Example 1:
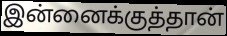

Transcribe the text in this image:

இன்னைக்குத்தான்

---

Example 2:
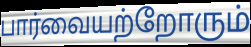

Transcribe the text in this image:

பார்வையற்றோரும்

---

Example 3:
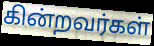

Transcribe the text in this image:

கின்றவர்கள்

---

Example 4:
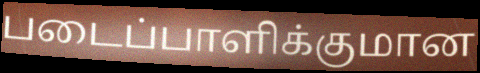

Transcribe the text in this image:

படைப்பாளிக்குமான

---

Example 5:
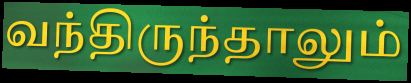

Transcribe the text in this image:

வந்திருந்தாலும்